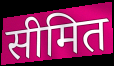
सीमित